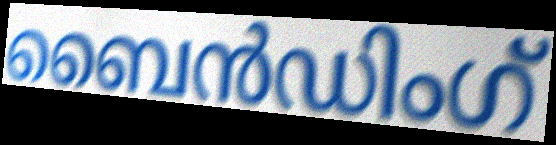
ബൈൻഡിംഗ്